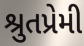
શ્રુતપ્રેમી